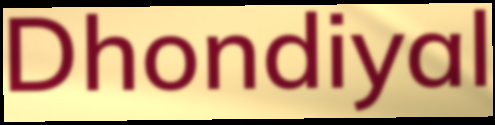
Dhondiyal